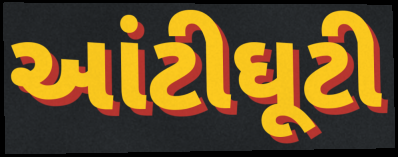
આંટીઘૂટી